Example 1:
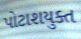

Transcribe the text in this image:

પોટાશયુક્ત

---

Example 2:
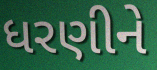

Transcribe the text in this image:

ધરણીને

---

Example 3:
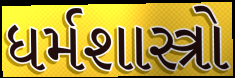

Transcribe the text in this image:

ધર્મશાસ્ત્રો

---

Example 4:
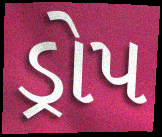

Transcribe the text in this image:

ડ્રોપ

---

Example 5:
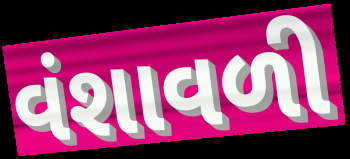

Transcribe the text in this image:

વંશાવળી